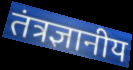
तंत्रज्ञानीय